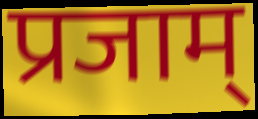
प्रजाम्